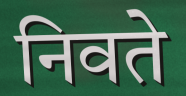
निवते